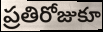
ప్రతిరోజుకూ